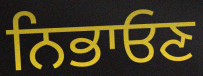
ਨਿਭਾਓਣ